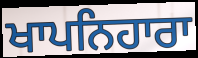
ਖਾਪਨਿਹਾਰਾ